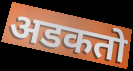
अडकतो